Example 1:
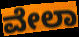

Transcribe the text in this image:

ವೇಲಾ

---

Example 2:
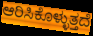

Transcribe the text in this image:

ಆರಿಸಿಕೊಳ್ಳುತ್ತದೆ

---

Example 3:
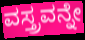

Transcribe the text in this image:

ವಸ್ತ್ರವನ್ನೇ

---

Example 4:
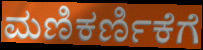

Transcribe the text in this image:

ಮಣಿಕರ್ಣಿಕೆಗೆ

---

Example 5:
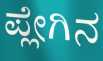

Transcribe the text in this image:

ಪ್ಲೇಗಿನ